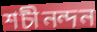
শচীনন্দন